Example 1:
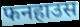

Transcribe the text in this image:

फनहाउस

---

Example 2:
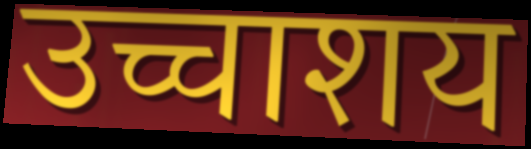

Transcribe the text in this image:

उच्चाशय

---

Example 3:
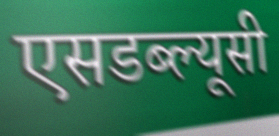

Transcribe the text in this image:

एसडब्ल्यूसी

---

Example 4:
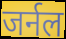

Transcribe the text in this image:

जर्नल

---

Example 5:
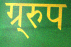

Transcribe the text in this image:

ग्र्रुप